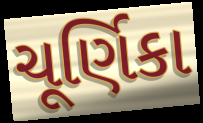
ચૂર્ણિકા